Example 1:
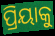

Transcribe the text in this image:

ପ୍ରିୟାକୁ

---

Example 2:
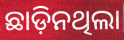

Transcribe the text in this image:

ଛାଡ଼ିନଥିଲା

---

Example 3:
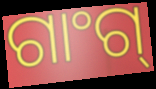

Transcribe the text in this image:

ଗାଂଗ୍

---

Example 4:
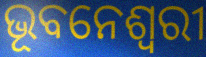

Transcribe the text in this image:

ଭୂବନେଶ୍ୱରୀ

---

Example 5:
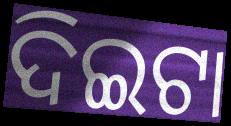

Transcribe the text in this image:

ଦିଇଟା